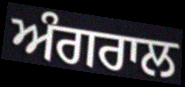
ਅੰਗਰਾਲ